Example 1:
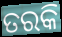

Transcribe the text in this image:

ତରକି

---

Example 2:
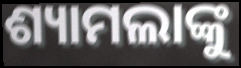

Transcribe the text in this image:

ଶ୍ୟାମଲାଙ୍କୁ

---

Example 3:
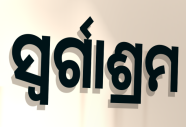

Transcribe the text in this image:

ସ୍ୱର୍ଗାଶ୍ରମ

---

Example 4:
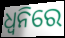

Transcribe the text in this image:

ଧ୍ୱନିରେ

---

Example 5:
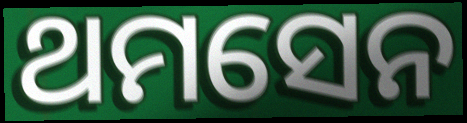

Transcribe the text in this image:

ଥମସେନ